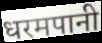
धरमपानी